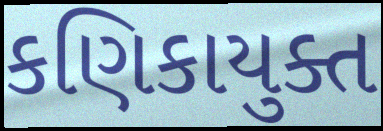
કણિકાયુક્ત